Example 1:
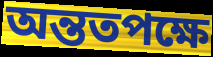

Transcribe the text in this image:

অন্ততপক্ষে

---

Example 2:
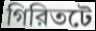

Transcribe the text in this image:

গিরিতটে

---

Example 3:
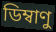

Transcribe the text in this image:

ডিম্বাণু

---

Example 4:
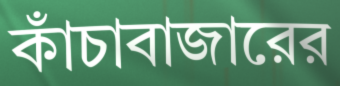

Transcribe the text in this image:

কাঁচাবাজারের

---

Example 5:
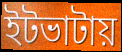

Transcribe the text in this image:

ইটভাটায়